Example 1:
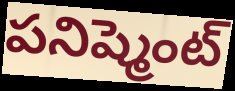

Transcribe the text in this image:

పనిష్మెంట్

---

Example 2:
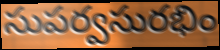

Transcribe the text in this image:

సుపర్వసురభిం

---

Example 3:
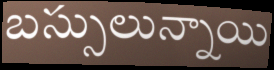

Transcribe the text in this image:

బస్సులున్నాయి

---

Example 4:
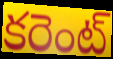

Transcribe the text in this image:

కరెంట్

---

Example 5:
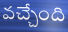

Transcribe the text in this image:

వచ్చేంది